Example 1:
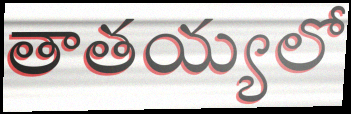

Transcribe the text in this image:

తాతయ్యలో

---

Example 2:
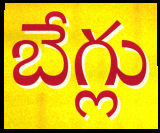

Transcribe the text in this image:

బేగ్లు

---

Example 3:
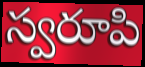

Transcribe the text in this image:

స్వరూపి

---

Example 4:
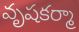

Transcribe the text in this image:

వృషకర్మా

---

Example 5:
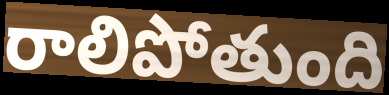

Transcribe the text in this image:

రాలిపోతుంది